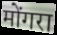
मोंगरा